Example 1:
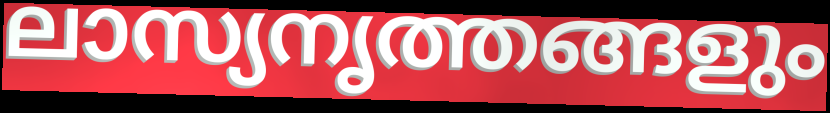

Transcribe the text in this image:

ലാസ്യനൃത്തങ്ങളും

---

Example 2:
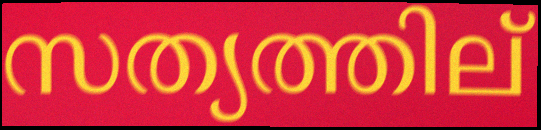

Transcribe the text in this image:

സത്യത്തില്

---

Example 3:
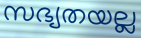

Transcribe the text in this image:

സഭ്യതയല്ല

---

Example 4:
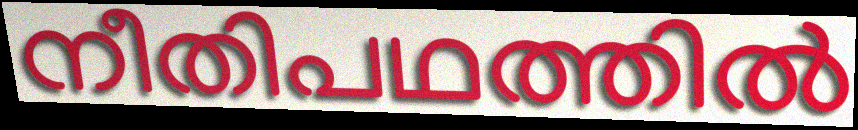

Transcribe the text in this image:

നീതിപഥത്തിൽ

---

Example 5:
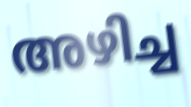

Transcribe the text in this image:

അഴിച്ച